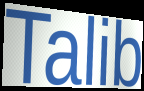
Talib